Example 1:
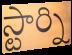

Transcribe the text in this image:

స్టార్ని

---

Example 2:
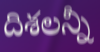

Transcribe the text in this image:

దిశలన్నీ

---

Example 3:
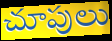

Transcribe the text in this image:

చూపులు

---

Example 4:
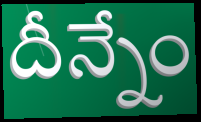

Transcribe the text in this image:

దీన్నేం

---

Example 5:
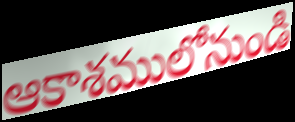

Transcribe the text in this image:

ఆకాశములోనుండి